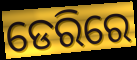
ଡେରିରେ